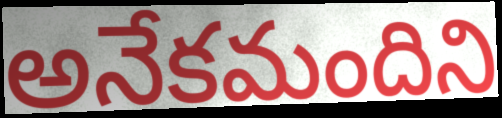
అనేకమందిని